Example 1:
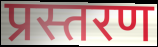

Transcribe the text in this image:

प्रस्तरण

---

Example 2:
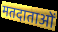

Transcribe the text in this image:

मतदाताओें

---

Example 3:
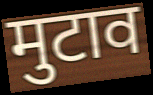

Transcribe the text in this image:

मुटाव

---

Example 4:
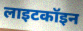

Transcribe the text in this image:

लाइटकॉइन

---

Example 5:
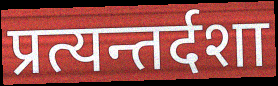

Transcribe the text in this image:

प्रत्यन्तर्दशा